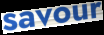
savour